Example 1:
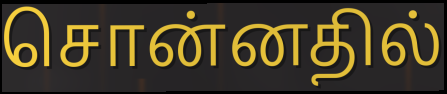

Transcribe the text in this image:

சொன்னதில்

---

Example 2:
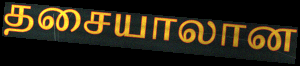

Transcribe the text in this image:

தசையாலான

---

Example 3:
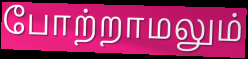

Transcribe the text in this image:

போற்றாமலும்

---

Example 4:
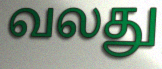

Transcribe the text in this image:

வலது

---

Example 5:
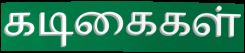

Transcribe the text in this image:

கடிகைகள்